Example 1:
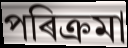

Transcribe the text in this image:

পৰিক্ৰমা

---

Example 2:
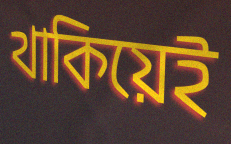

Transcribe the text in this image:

থাকিয়েই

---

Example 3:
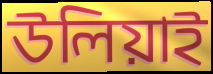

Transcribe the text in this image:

উলিয়াই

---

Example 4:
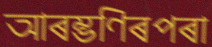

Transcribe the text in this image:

আৰম্ভণিৰপৰা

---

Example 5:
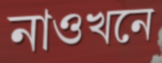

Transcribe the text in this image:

নাওখনে